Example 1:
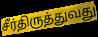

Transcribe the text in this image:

சீர்திருத்துவது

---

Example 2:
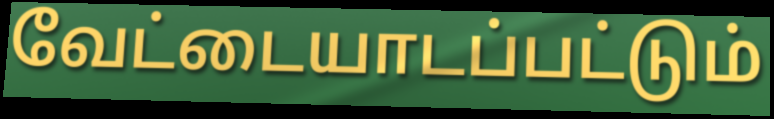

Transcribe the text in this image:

வேட்டையாடப்பட்டும்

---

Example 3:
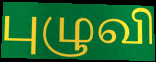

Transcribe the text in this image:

புழுவி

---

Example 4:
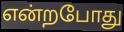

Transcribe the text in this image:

என்றபோது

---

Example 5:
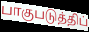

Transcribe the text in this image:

பாகுபடுத்திப்